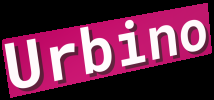
Urbino